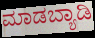
ಮಾಡಬ್ಯಾಡಿ